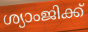
ശ്യാംജിക്ക്